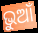
ଭୁଆଁ